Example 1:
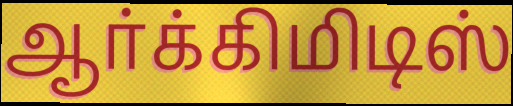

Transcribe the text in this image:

ஆர்க்கிமிடிஸ்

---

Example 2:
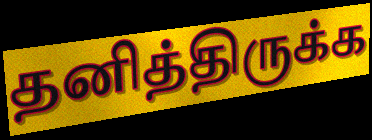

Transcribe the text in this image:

தனித்திருக்க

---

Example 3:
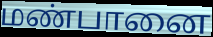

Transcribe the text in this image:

மண்பானை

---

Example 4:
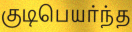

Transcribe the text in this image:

குடிபெயர்ந்த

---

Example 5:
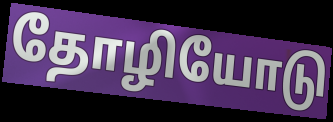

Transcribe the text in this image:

தோழியோடு